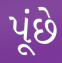
પૂંછે